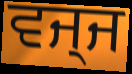
ਵਜ੍ਜ